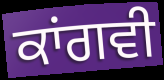
ਕਾਂਗਵੀ